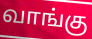
வாங்கு